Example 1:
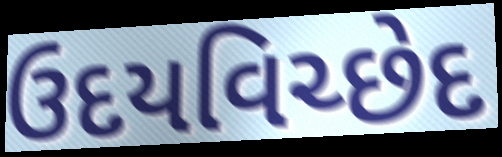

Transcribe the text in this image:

ઉદયવિચ્છેદ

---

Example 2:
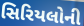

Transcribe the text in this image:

સિરિયલોની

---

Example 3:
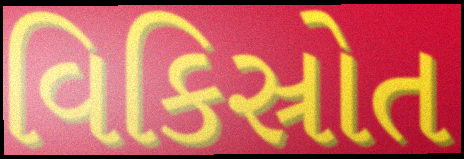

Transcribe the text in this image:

વિકિસ્રોત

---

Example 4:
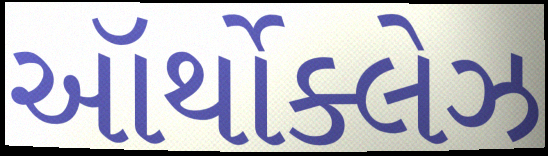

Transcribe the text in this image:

ઑર્થોક્લેઝ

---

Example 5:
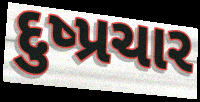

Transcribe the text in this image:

દુષ્પ્રચાર